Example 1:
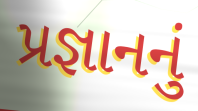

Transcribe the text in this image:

પ્રજ્ઞાનનું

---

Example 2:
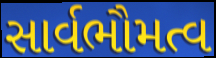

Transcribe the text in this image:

સાર્વભૌમત્વ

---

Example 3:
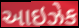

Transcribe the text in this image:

આઇઝેક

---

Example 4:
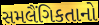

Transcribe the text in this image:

સમલૈંગિકતાનો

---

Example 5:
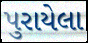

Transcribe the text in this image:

પુરાયેલા